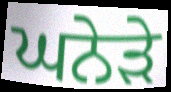
ਘਨੇੜੇ